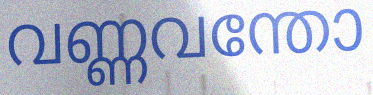
വണ്ണവന്തോ